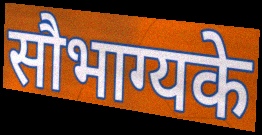
सौभाग्यके